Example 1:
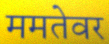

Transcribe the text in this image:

ममतेवर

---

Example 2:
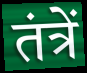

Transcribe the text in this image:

तंत्रें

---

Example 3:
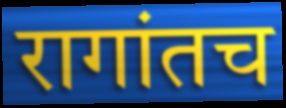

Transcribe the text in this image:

रागांतच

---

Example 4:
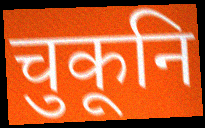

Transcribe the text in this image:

चुकूनि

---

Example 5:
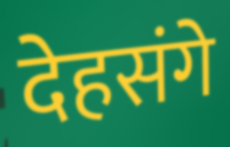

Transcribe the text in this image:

देहसंगे